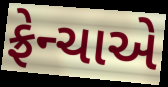
ફ્રેન્ચાએ